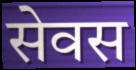
सेवस